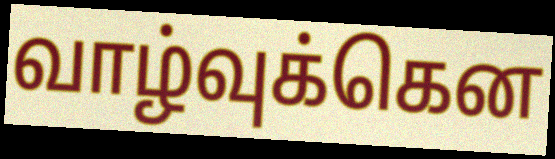
வாழ்வுக்கென